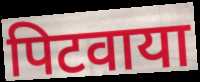
पिटवाया